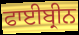
ਫਾਈਬ੍ਰੀਨ